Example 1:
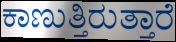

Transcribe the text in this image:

ಕಾಣುತ್ತಿರುತ್ತಾರೆ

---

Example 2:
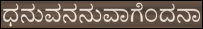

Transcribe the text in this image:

ಧನುವನನುವಾಗೆಂದನಾ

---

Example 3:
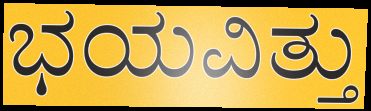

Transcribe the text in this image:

ಭಯವಿತ್ತು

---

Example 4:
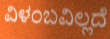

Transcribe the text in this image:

ವಿಳಂಬವಿಲ್ಲದೆ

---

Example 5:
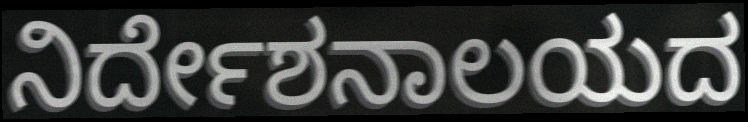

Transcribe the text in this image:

ನಿರ್ದೇಶನಾಲಯದ